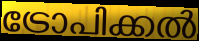
ട്രോപിക്കൽ